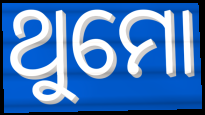
ଥୁମୋ